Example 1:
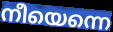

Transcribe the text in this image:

നീയെന്നെ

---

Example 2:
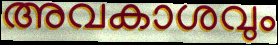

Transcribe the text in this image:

അവകാശവും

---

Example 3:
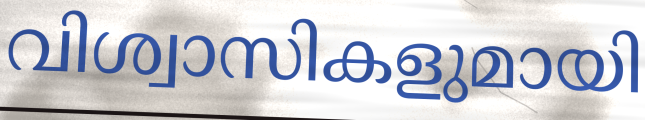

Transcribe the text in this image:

വിശ്വാസികളുമായി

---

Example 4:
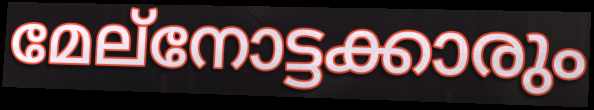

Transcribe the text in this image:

മേല്നോട്ടക്കാരും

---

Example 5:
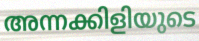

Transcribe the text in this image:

അന്നക്കിളിയുടെ